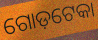
ଗୋଡ଼ଟେକା